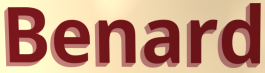
Benard